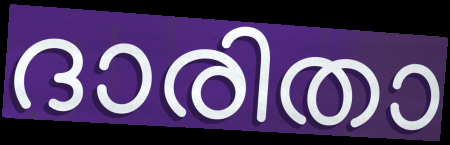
ദാരിതാ